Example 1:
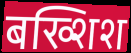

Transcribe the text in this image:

बख्शिश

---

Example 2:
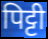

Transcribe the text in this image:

पिट्टी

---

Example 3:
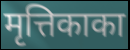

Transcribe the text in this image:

मृत्तिकाका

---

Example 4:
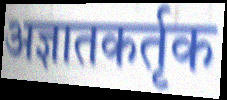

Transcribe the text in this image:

अज्ञातकर्तृक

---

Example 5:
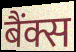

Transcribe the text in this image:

बैंक्स